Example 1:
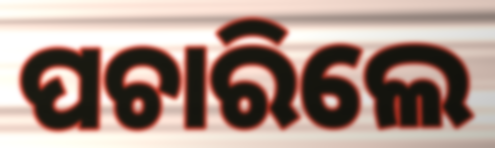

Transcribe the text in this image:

ପଚାରିଲେ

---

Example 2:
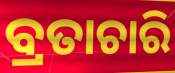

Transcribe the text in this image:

ବ୍ରତାଚାରି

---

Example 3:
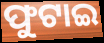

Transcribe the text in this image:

ଫୁଟାଇ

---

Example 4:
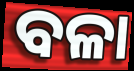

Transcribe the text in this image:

ବଳା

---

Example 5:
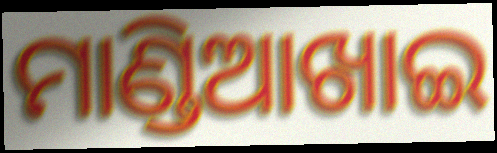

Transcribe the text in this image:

ମାଣ୍ଡିଆଖାଇ